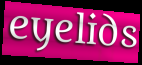
eyelids